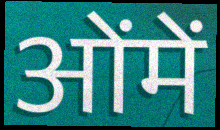
ओंमें